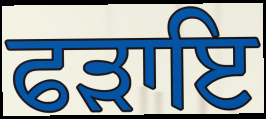
ਫੜਾਇ